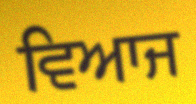
ਵਿਆਜ